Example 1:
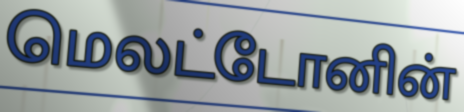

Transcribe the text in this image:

மெலட்டோனின்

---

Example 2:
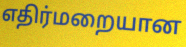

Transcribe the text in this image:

எதிர்மறையான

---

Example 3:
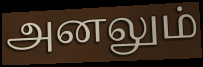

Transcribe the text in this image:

அனலும்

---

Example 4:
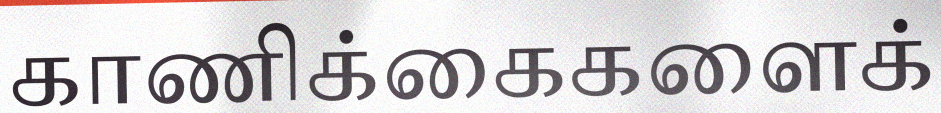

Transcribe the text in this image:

காணிக்கைகளைக்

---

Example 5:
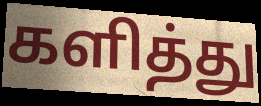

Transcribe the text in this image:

களித்து